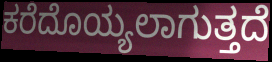
ಕರೆದೊಯ್ಯಲಾಗುತ್ತದೆ